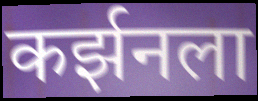
कर्झनला